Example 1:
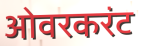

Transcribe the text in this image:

ओवरकरंट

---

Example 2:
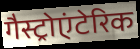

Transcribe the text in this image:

गैस्ट्रोएंटेरिक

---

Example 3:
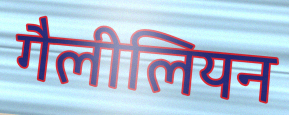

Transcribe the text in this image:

गैलीलियन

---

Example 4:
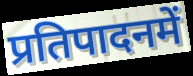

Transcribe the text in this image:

प्रतिपादनमें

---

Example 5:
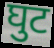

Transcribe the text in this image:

घुट